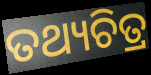
ତଥ୍ୟଚିତ୍ର